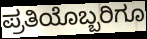
ಪ್ರತಿಯೊಬ್ಬರಿಗೂ